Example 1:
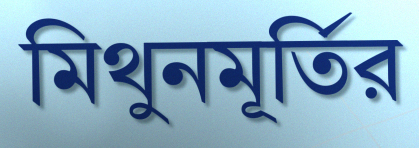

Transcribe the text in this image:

মিথুনমূর্তির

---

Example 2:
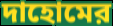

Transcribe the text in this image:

দাহোমের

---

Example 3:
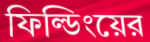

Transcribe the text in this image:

ফিল্ডিংয়ের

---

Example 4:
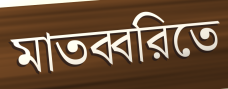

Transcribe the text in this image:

মাতব্বরিতে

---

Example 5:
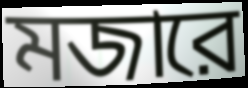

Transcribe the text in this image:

মজারে